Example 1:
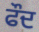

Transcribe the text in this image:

ਫੌਦ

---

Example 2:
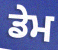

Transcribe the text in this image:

ਡੇਮ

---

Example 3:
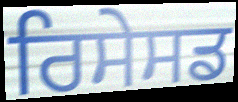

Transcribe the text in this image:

ਰਿਸੇਸਡ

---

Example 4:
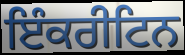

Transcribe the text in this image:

ਇੰਕਰੀਟਿਨ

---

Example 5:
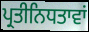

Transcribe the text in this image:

ਪ੍ਰਤੀਨਿਧਤਾਵਾਂ